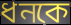
ধনকে